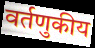
वर्तणुकीय